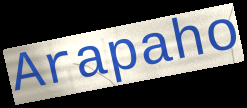
Arapaho